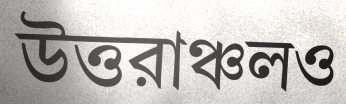
উত্তরাঞ্চলও